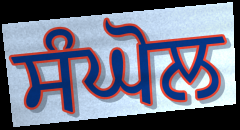
ਸੰਘੋਲ